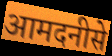
आमदनीसे